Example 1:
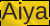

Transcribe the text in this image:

Aiya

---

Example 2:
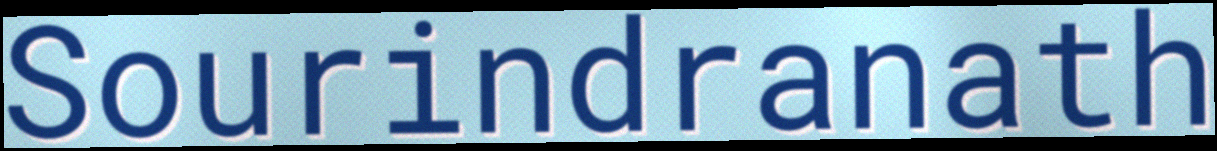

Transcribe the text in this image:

Sourindranath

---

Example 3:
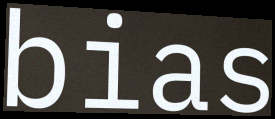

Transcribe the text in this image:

bias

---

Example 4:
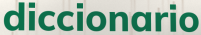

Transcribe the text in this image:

diccionario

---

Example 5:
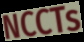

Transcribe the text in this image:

NCCTs